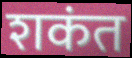
शकंत